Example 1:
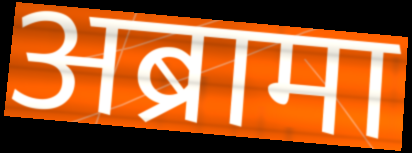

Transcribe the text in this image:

अब्रामा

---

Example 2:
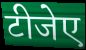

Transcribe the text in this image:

टीजेए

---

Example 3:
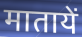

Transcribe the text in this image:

मातायें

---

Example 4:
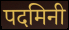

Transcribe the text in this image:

पदमिनी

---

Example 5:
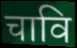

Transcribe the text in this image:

चावि